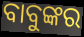
ବାବୁଙ୍କର